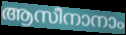
ആസീനാനാം